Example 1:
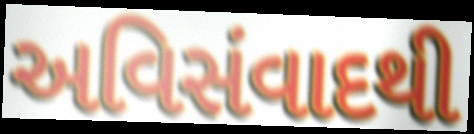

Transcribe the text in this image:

અવિસંવાદથી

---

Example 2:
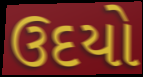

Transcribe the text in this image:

ઉદયો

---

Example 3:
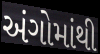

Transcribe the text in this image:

અંગોમાંથી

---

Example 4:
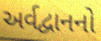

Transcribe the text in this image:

અર્વદ્વાનનો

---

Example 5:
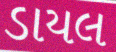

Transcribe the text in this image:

ડાયલ